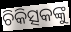
ଚିକିତ୍ସକଙ୍କୁ